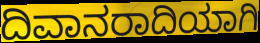
ದಿವಾನರಾದಿಯಾಗಿ